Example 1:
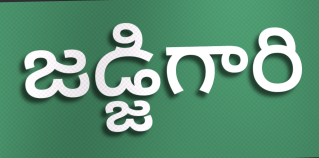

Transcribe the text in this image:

జడ్జిగారి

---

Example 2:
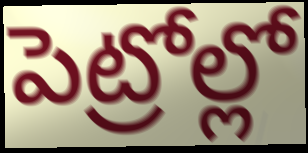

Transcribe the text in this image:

పెట్రోల్లో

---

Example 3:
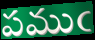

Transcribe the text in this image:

పముఁ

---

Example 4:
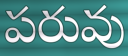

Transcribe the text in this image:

పరువు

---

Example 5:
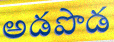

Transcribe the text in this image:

అడపొడ